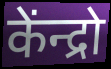
केंन्द्रो